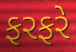
ફરફરે